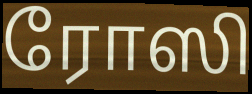
ரோஸி